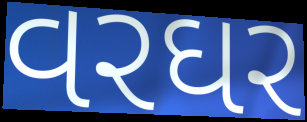
વરઘર